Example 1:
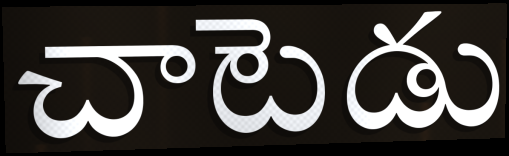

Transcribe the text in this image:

చాటెడు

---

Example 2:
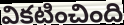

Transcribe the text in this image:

వికటించింది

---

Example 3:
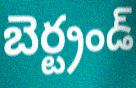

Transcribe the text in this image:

బెర్ట్రండ్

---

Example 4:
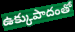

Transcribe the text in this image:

ఉక్కుపాదంతో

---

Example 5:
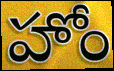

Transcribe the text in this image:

హోం